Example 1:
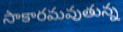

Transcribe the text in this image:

సాకారమవుతున్న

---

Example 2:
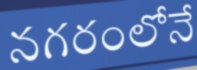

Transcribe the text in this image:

నగరంలోనే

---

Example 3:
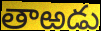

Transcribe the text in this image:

తాఱడు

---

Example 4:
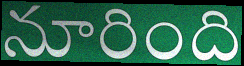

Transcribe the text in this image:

నూరింది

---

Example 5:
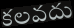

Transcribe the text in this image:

కలవదు